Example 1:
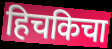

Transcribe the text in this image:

हिचकिचा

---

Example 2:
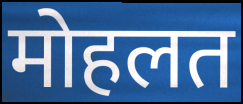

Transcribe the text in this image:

मोहलत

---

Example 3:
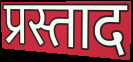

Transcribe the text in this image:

प्रस्ताद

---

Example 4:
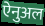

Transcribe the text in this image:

ऐनुअल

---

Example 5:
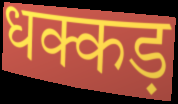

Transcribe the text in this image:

धक्कड़